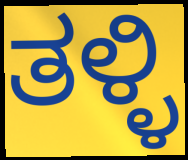
ತಳ್ಳಿ